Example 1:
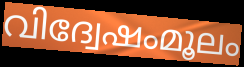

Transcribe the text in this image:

വിദ്വേഷംമൂലം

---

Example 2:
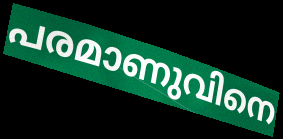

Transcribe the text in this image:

പരമാണുവിനെ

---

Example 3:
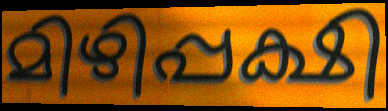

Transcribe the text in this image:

മിഴിപ്പക്ഷി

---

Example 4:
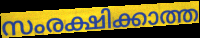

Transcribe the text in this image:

സംരക്ഷിക്കാത്ത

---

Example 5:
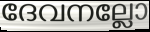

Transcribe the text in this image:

ദേവനല്ലോ